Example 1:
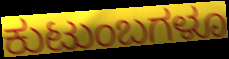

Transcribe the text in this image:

ಕುಟುಂಬಗಳೂ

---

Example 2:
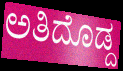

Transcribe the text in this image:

ಅತಿದೊಡ್ದ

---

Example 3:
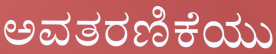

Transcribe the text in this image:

ಅವತರಣಿಕೆಯು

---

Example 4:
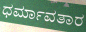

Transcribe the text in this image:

ಧರ್ಮಾವತಾರ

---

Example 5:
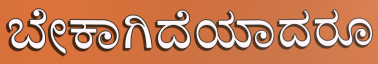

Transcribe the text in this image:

ಬೇಕಾಗಿದೆಯಾದರೂ